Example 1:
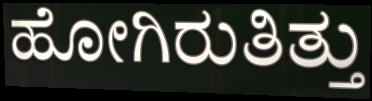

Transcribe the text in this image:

ಹೋಗಿರುತಿತ್ತು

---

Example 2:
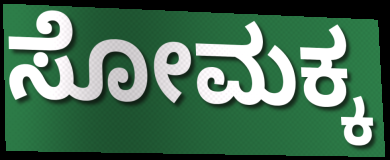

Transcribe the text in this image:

ಸೋಮಕ್ಕ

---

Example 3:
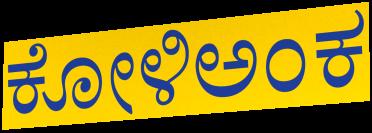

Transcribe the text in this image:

ಕೋಳಿಅಂಕ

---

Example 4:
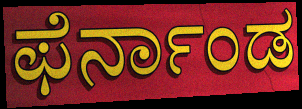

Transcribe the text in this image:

ಫೆರ್ನಾಂಡ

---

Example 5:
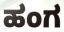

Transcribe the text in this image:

ಹಂಗ